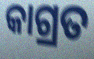
କାଗ୍ରତ